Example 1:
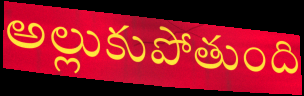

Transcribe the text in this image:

అల్లుకుపోతుంది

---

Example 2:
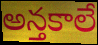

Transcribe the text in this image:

అన్తకాలే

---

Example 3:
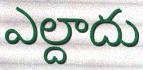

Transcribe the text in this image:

ఎల్దాదు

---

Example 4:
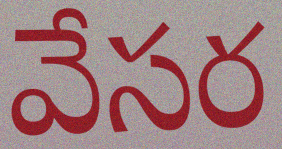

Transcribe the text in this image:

వేసర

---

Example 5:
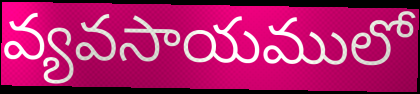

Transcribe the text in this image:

వ్యవసాయములో